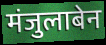
मंजुलाबेन